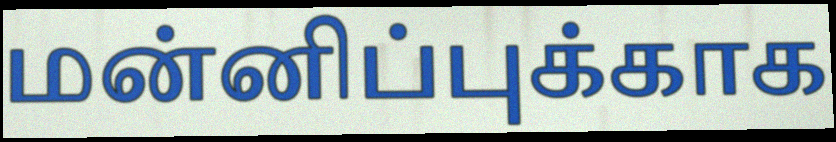
மன்னிப்புக்காக